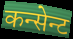
कन्सेन्ट